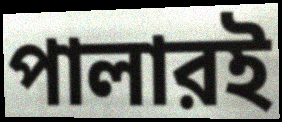
পালারই